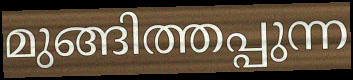
മുങ്ങിത്തപ്പുന്ന